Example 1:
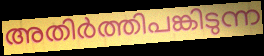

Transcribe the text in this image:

അതിർത്തിപങ്കിടുന്ന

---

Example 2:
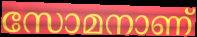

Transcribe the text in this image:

സോമനാണ്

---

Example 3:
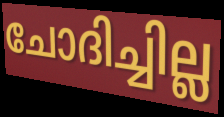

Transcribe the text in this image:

ചോദിച്ചില്ല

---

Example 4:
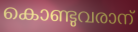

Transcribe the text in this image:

കൊണ്ടുവരാന്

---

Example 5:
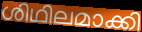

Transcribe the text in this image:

ശിഥിലമാക്കി